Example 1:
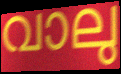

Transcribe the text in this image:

വാലു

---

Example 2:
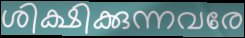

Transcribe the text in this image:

ശിക്ഷിക്കുന്നവരേ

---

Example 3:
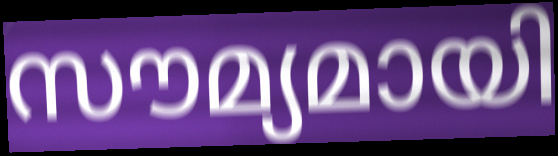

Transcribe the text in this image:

സൗമ്യമായി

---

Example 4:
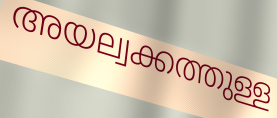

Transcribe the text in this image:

അയല്വക്കത്തുള്ള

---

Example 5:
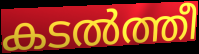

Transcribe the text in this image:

കടൽത്തീ